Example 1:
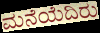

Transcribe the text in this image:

ಮನೆಯೆದಿರು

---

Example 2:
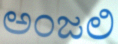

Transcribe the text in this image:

ಅಂಜಲಿ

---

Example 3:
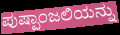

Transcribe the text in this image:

ಪುಷ್ಪಾಂಜಲಿಯನ್ನು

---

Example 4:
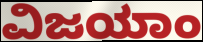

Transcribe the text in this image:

ವಿಜಯಾಂ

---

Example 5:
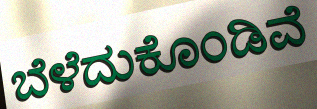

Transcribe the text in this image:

ಬೆಳೆದುಕೊಂಡಿವೆ